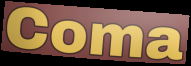
Coma